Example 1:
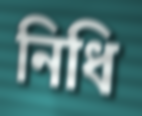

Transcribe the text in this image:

নিধি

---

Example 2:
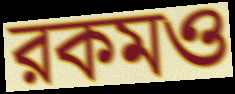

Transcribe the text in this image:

রকমও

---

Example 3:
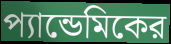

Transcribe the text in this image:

প্যান্ডেমিকের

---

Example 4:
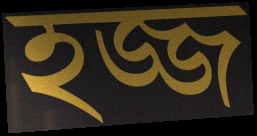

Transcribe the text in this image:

হজ্জ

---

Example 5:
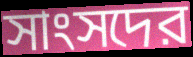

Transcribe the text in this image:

সাংসদের